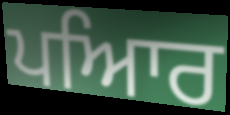
ਪਆਿਰ